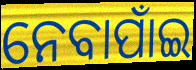
ନେବାପାଁଇ